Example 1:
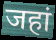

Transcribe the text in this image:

जहां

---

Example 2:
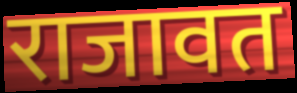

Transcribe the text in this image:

राजावत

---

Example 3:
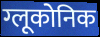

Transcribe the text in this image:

ग्लूकोनिक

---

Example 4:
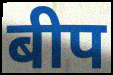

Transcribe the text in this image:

बीप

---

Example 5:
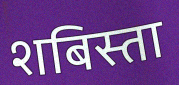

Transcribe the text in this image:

शबिस्ता